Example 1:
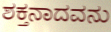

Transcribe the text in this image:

ಶಕ್ತನಾದವನು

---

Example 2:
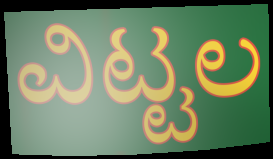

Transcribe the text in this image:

ವಿಟ್ಟಲ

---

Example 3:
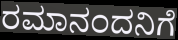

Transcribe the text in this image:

ರಮಾನಂದನಿಗೆ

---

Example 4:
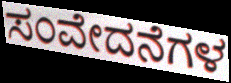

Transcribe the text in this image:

ಸಂವೇದನೆಗಳ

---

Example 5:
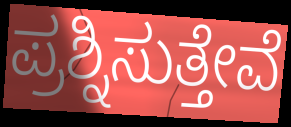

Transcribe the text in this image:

ಪ್ರಶ್ನಿಸುತ್ತೇವೆ